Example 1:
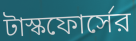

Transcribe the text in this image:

টাস্কফোর্সের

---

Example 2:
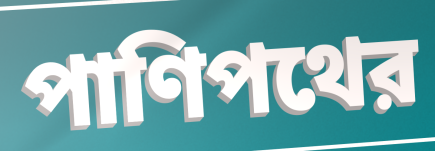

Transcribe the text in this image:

পাণিপথের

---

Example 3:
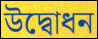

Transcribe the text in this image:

উদ্বোধন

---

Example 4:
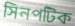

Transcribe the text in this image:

সিনপটিক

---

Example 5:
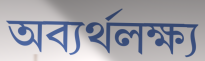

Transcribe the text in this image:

অব্যর্থলক্ষ্য